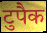
टुपैक